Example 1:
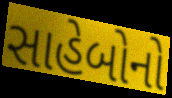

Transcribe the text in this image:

સાહેબોનો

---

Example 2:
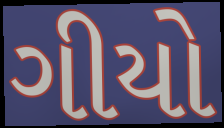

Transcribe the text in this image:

ગીયો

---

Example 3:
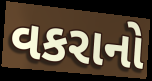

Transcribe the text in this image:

વકરાનો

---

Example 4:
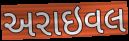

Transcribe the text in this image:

અરાઇવલ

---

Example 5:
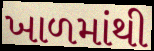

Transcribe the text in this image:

ખાળમાંથી